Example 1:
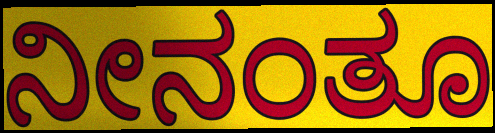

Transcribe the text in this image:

ನೀನಂತೂ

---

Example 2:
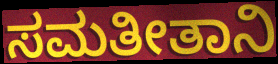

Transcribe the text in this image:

ಸಮತೀತಾನಿ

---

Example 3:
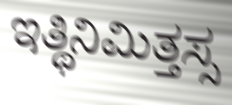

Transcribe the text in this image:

ಇತ್ಥಿನಿಮಿತ್ತಸ್ಸ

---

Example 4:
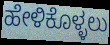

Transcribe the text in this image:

ಹೇಳಿಕೊಳ್ಳಲು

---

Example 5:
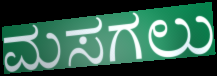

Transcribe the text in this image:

ಮಸಗಲು